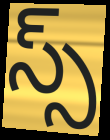
స్స్